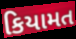
કિયામત